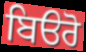
ਬਿੳਰੋ